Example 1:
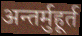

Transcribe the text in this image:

अन्तर्मुहूर्त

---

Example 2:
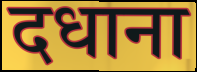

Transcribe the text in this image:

दधाना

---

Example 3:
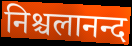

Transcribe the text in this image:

निश्चलानन्द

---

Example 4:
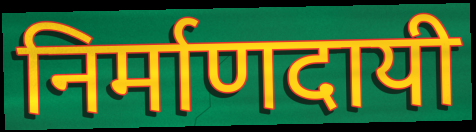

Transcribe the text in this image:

निर्माणदायी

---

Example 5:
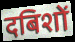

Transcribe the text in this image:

दबिशों